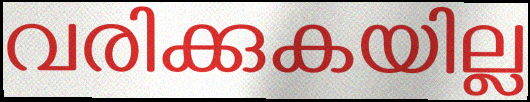
വരിക്കുകയില്ല